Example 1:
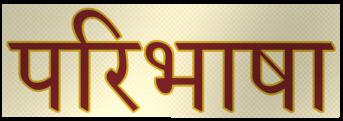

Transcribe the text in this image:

परिभाषा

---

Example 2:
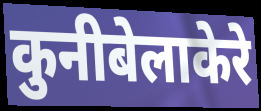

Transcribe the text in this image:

कुनीबेलाकेरे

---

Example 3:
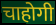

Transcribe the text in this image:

चाहोगी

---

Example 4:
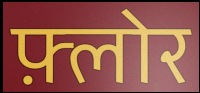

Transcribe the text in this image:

फ़्लोर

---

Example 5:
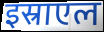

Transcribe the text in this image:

इस्राएल